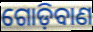
ଗୋଡ଼ିବାଣ